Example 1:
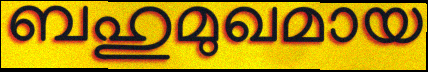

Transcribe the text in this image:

ബഹുമുഖമായ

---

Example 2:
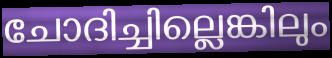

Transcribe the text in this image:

ചോദിച്ചില്ലെങ്കിലും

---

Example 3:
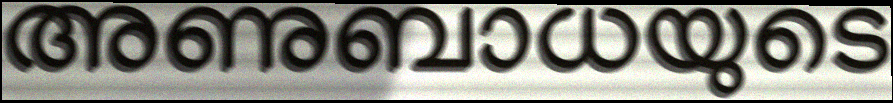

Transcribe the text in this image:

അണുബാധയുടെ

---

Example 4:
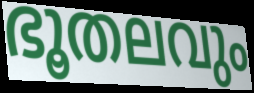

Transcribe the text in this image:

ഭൂതലവും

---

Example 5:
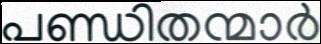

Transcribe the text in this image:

പണ്ഡിതന്മാർ